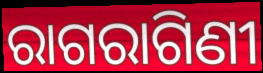
ରାଗରାଗିଣୀ